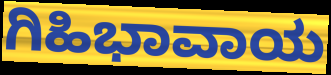
ಗಿಹಿಭಾವಾಯ